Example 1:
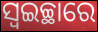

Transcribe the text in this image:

ସ୍ୱଇଚ୍ଛାରେ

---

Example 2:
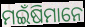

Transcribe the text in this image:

ମଇଁଷିମାନେ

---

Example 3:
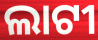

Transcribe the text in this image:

ଲାଟୀ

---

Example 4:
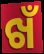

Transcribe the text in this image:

ଖଁ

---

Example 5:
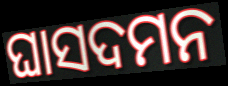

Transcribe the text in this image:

ଘାସଦମନ